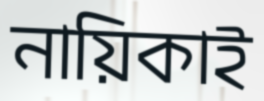
নায়িকাই